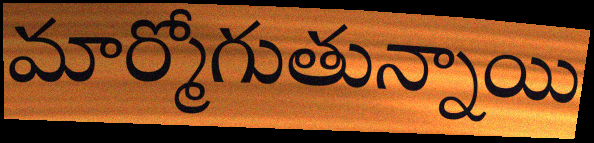
మార్మోగుతున్నాయి